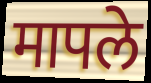
मापले